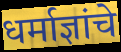
धर्माज्ञांचे